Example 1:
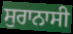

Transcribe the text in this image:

ਸੁਰਾਨਾਸੀ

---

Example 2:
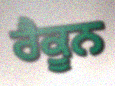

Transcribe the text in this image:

ਰੈਕੂਨ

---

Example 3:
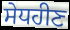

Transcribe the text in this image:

ਸੇਧਹੀਣ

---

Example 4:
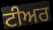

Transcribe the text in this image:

ਟੀਅਰ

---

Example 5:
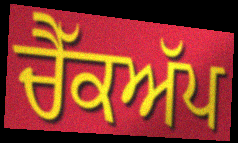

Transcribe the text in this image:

ਚੈੱਕਅੱਪ